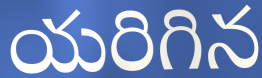
యరిగిన